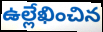
ఉల్లేఖించిన